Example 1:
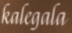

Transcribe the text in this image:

kalegala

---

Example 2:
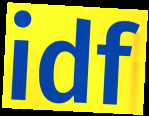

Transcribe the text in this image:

idf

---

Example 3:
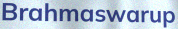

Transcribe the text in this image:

Brahmaswarup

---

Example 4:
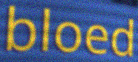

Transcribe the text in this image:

bloed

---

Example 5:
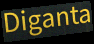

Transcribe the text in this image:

Diganta